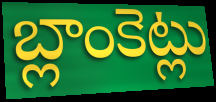
బ్లాంకెట్లు